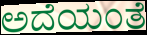
ಅದೆಯಂತೆ